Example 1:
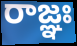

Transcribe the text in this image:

రాజ్ఞః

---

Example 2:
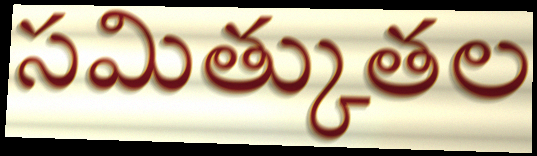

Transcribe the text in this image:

సమిత్కుతల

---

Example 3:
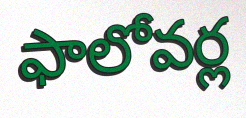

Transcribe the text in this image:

ఫాలోవర్ల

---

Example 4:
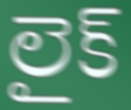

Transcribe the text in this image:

లైక్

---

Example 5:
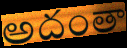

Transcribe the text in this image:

అదంతా